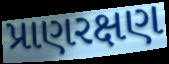
પ્રાણરક્ષણ